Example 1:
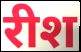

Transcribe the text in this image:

रीश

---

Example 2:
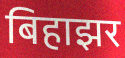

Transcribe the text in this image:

बिहाझर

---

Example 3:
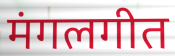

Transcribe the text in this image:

मंगलगीत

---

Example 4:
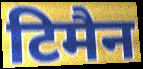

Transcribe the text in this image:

टिमैन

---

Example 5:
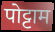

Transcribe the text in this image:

पोट्टाम